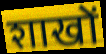
शाखों